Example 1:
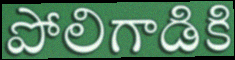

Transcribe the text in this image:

పోలిగాడికి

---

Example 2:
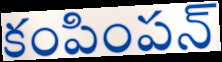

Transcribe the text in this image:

కంపింపన్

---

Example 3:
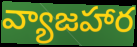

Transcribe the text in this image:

వ్యాజహార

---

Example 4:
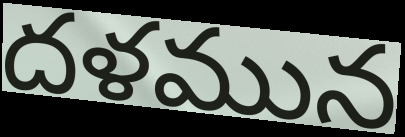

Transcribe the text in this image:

దళమున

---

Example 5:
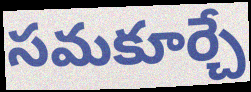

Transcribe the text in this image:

సమకూర్చే